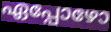
ഏപ്പോഴോ